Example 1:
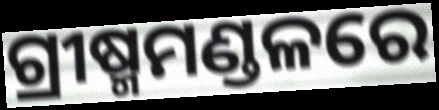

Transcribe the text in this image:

ଗ୍ରୀଷ୍ମମଣ୍ଡଳରେ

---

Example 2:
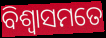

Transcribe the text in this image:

ବିଶ୍ୱାସମତେ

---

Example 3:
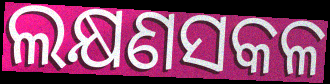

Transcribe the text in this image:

ଲକ୍ଷଣସକଳ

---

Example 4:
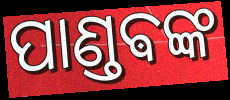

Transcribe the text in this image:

ପାଣ୍ଡଵଙ୍କ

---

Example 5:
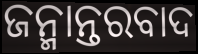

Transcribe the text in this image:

ଜନ୍ମାନ୍ତରବାଦ